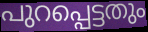
പുറപ്പെട്ടതും